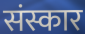
संस्कार